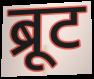
ब्रूट